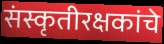
संस्कृतीरक्षकांचे